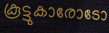
കൂട്ടുകാരോടോ